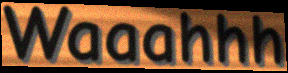
Waaahhh